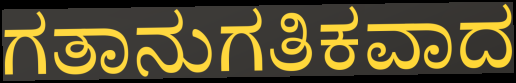
ಗತಾನುಗತಿಕವಾದ